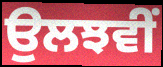
ਉਲਝਵੀਂ